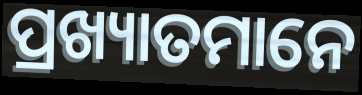
ପ୍ରଖ୍ୟାତମାନେ